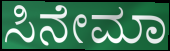
ಸಿನೇಮಾ